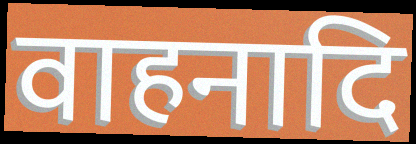
वाहनादि